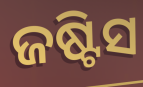
ଜଷ୍ଟିସ